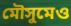
মৌসুমেও